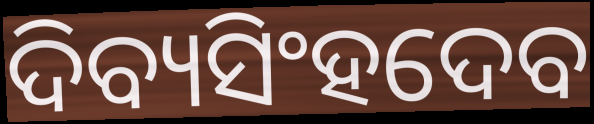
ଦିବ୍ୟସିଂହଦେବ